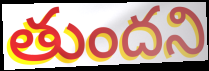
తుందని